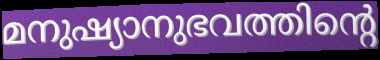
മനുഷ്യാനുഭവത്തിന്റെ